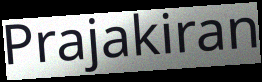
Prajakiran